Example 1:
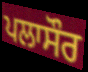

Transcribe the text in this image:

ਪਲਾਸੌਰ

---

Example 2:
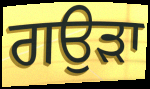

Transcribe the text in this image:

ਗਉੜਾ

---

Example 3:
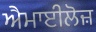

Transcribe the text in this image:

ਐਮਾਈਲੋਜ਼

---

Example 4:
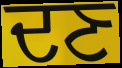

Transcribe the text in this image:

ਦਣ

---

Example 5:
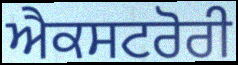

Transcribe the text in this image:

ਐਕਸਟਰੋਰੀ